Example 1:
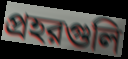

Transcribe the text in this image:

প্রহরগুলি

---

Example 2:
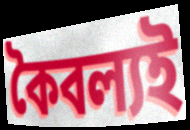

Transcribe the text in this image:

কৈবল্যই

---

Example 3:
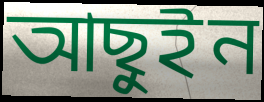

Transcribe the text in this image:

আছুইন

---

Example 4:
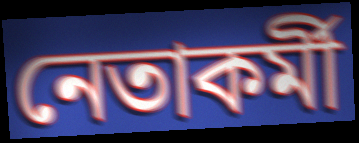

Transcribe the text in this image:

নেতাকর্মী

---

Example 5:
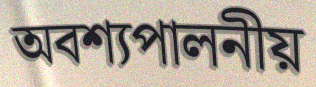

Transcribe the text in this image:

অবশ্যপালনীয়